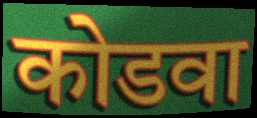
कोडवा